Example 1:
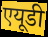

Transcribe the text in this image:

एयूडी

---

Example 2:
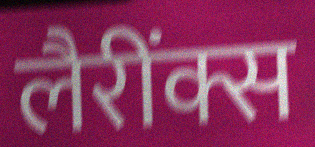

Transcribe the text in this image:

लैरींक्स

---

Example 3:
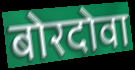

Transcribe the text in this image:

बोरदोवा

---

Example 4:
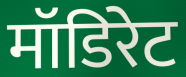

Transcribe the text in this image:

मॉडिरेट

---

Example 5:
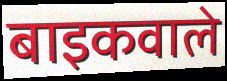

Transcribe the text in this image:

बाइकवाले